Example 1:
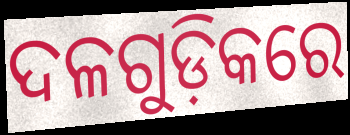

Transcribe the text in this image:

ଦଳଗୁଡ଼ିକରେ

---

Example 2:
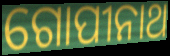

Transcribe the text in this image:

ଗୋପୀନାଥ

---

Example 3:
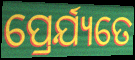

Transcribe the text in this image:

ପ୍ରେର୍ଯ୍ୟତେ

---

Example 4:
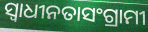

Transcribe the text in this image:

ସ୍ଵାଧୀନତାସଂଗ୍ରାମୀ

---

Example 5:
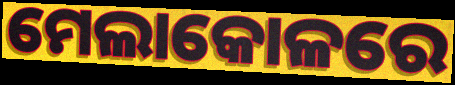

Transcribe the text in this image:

ମେଲାକୋଳରେ